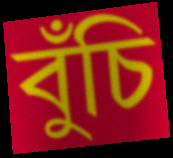
বুঁচি